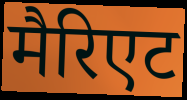
मैरिएट